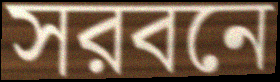
সরবনে